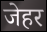
जेहर